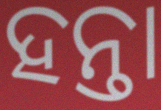
ହନ୍ତା